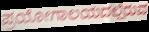
ಪ್ರಯೋಗಾಲಯದಲ್ಲಿರುವ